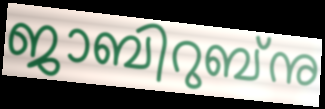
ജാബിറുബ്നു